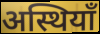
अस्थियाँ